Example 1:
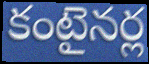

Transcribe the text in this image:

కంటైనర్ల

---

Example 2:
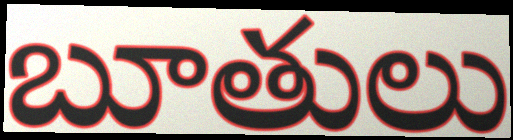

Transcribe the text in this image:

బూతులు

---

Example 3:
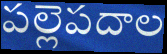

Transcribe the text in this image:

పల్లెపదాల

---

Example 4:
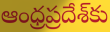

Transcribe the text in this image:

ఆంధ్రప్రదేశ్‌కు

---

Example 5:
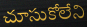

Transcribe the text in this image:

చూసుకోలేని